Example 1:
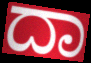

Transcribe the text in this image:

ದಾ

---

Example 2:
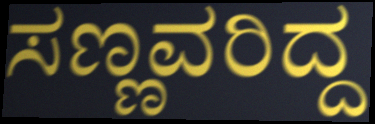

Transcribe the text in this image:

ಸಣ್ಣವರಿದ್ದ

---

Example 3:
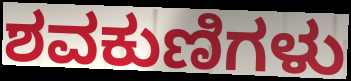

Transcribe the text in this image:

ಶವಕುಣಿಗಳು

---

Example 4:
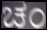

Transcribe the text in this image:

ಚಂ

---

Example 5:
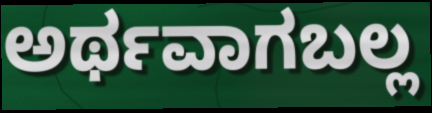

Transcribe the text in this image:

ಅರ್ಥವಾಗಬಲ್ಲ